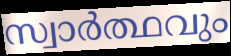
സ്വാർത്ഥവും